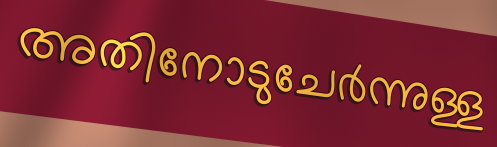
അതിനോടുചേർന്നുള്ള